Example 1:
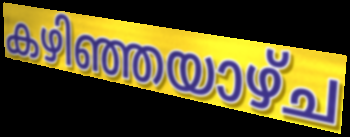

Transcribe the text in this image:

കഴിഞ്ഞയാഴ്ച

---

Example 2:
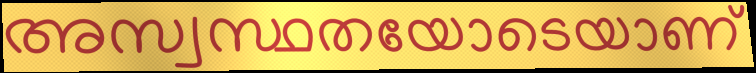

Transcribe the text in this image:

അസ്വസ്ഥതയോടെയാണ്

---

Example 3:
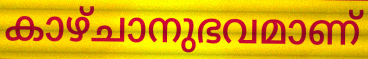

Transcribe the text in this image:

കാഴ്ചാനുഭവമാണ്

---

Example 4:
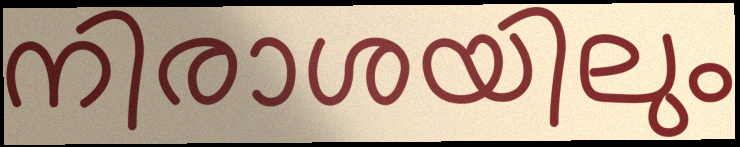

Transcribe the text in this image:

നിരാശയിലും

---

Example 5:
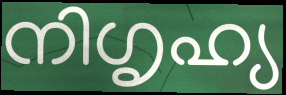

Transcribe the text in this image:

നിഗൃഹ്യ